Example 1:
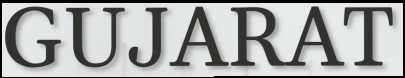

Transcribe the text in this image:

GUJARAT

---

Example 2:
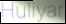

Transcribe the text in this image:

Huliyar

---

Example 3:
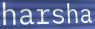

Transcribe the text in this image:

harsha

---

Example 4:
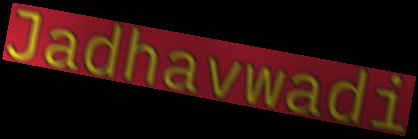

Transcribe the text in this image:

Jadhavwadi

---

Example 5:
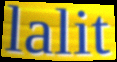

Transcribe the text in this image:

lalit